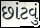
છાંટવું